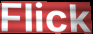
Flick